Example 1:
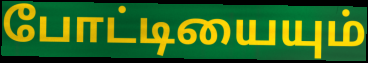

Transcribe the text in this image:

போட்டியையும்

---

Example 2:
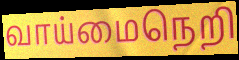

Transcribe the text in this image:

வாய்மைநெறி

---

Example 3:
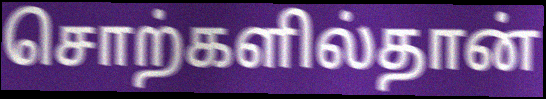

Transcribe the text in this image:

சொற்களில்தான்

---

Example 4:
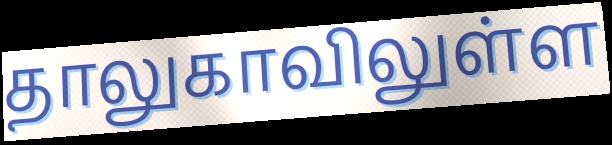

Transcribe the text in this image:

தாலுகாவிலுள்ள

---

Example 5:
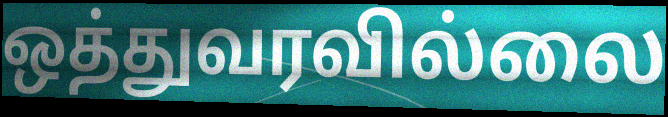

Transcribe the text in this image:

ஒத்துவரவில்லை